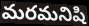
మరమనిషి